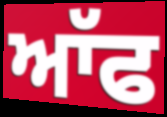
ਆੱਫ